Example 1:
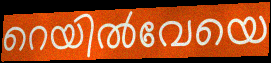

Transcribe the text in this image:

റെയിൽവേയെ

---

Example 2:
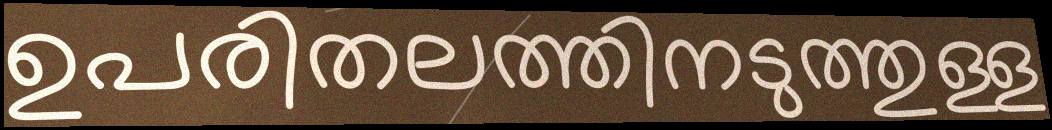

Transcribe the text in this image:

ഉപരിതലത്തിനടുത്തുള്ള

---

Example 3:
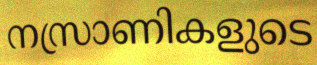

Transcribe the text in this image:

നസ്രാണികളുടെ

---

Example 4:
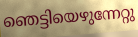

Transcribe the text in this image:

ഞെട്ടിയെഴുന്നേറ്റു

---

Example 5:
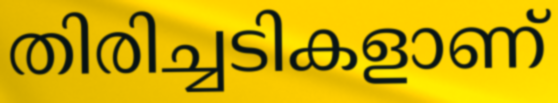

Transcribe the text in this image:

തിരിച്ചടികളാണ്